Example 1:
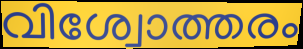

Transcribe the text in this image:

വിശ്വോത്തരം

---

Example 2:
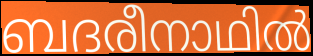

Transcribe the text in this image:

ബദരീനാഥിൽ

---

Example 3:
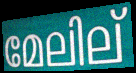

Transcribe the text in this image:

മേലില്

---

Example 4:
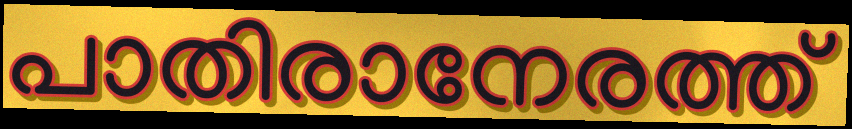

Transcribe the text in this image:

പാതിരാനേരത്ത്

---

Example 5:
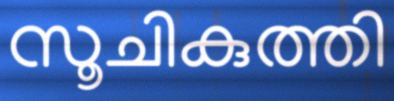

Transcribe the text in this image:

സൂചികുത്തി